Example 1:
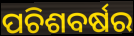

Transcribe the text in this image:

ପଚିଶବର୍ଷର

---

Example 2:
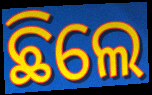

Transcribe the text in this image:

ଛିଲେ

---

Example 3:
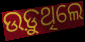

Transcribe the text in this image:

ଉଡ଼ୁଥିଲେ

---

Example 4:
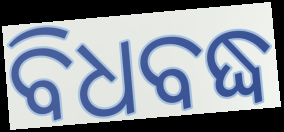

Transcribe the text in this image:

ବିଧବଦ୍ଧ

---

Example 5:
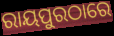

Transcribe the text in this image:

ରାୟପୁରଠାରେ